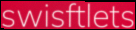
swisftlets